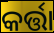
କର୍ତ୍ତା